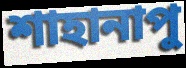
শাহানাপু